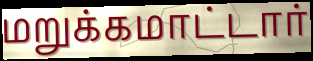
மறுக்கமாட்டார்